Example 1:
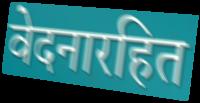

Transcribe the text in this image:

वेदनारहित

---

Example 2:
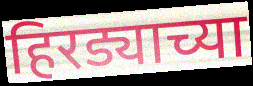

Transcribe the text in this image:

हिरड्याच्या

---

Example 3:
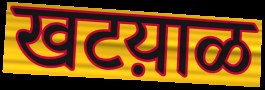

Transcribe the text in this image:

खटय़ाळ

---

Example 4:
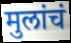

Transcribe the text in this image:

मुलांचं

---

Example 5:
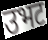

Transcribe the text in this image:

उभट